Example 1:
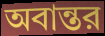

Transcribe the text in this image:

অবান্তর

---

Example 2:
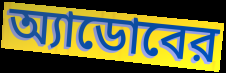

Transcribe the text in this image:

অ্যাডোবের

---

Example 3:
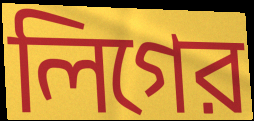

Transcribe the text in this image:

লিগের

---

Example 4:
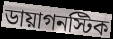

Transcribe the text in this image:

ডায়াগনস্টিক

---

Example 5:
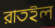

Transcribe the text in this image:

রাতইল